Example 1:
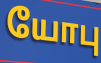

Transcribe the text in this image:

யோபு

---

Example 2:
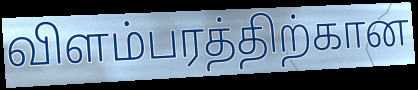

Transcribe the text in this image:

விளம்பரத்திற்கான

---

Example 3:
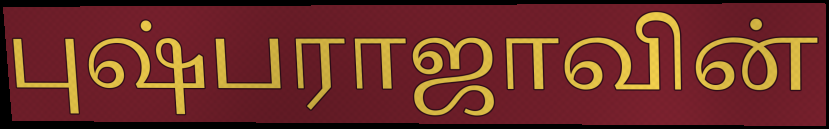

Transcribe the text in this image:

புஷ்பராஜாவின்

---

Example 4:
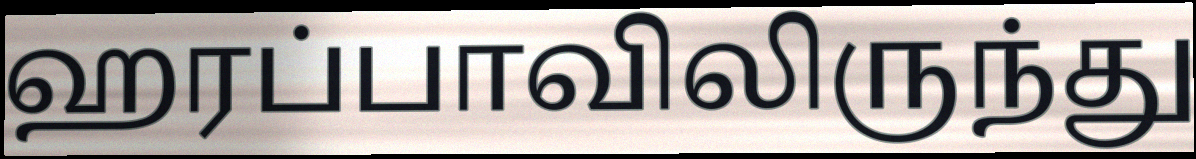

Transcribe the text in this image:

ஹரப்பாவிலிருந்து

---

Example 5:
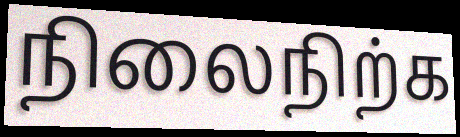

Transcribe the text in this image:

நிலைநிற்க